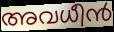
അവധീൻ